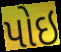
પોઇ